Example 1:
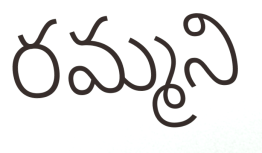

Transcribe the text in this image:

రమ్మని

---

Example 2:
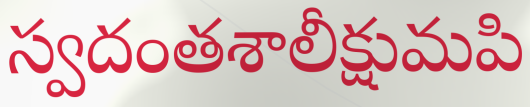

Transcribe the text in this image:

స్వదంతశాలీక్షుమపి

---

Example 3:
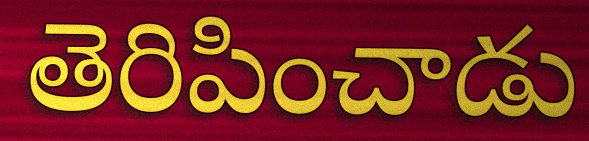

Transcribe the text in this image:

తెరిపించాడు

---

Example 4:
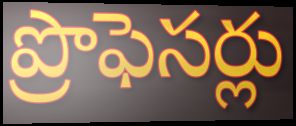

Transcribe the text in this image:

ప్రొఫెసర్లు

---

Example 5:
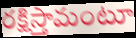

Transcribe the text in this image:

రక్షిస్తామంటూ